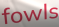
fowls